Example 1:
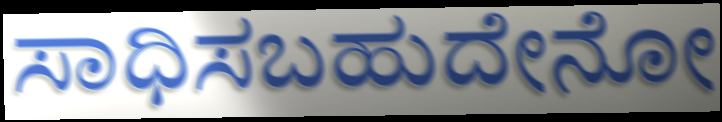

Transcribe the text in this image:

ಸಾಧಿಸಬಹುದೇನೋ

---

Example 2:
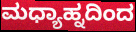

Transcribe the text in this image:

ಮಧ್ಯಾಹ್ನದಿಂದ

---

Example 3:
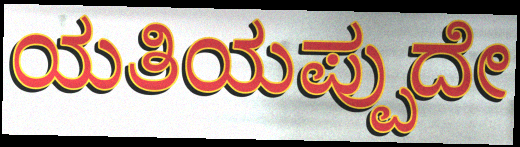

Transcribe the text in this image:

ಯತಿಯಪ್ಪುದೇ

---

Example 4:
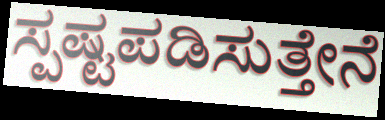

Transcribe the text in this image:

ಸ್ಪಷ್ಟಪಡಿಸುತ್ತೇನೆ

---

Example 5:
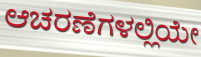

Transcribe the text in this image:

ಆಚರಣೆಗಳಲ್ಲಿಯೇ